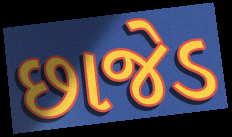
છાજેડ